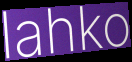
lahko